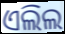
ଏଲିଲ